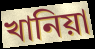
খানিয়া